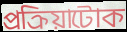
প্ৰক্ৰিয়াটোক